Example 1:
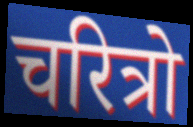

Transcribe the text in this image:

चरित्रो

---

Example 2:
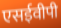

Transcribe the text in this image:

एसईवीपी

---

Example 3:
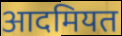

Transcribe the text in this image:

आदमियत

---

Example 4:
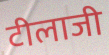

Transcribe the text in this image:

टीलाजी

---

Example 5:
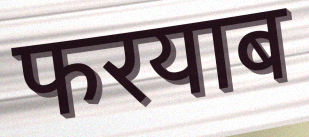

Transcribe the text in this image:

फरयाब